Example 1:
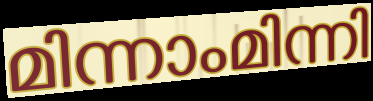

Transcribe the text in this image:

മിന്നാംമിന്നി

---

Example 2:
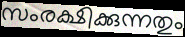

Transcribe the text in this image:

സംരക്ഷിക്കുന്നതും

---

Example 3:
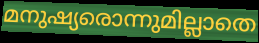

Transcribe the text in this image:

മനുഷ്യരൊന്നുമില്ലാതെ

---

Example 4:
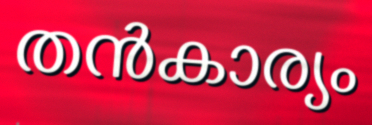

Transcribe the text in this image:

തൻകാര്യം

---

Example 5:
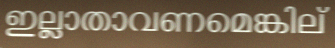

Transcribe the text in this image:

ഇല്ലാതാവണമെങ്കില്